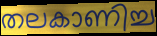
തലകാണിച്ച